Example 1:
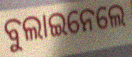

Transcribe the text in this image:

ବୁଲାଇନେଲେ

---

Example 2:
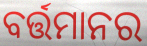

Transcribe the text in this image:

ବର୍ତ୍ତମାନର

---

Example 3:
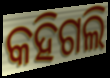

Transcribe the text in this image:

କହିଗଲି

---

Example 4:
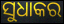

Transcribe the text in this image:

ସୁଧାକର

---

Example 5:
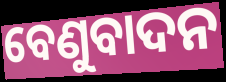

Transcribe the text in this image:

ବେଣୁବାଦନ